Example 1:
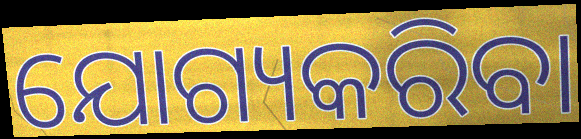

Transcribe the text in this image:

ଯୋଗ୍ୟକରିବା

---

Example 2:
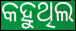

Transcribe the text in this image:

କହୁଥିଲ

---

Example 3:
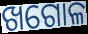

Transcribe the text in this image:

ଖଗୋଳ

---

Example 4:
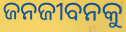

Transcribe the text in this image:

ଜନଜୀବନକୁ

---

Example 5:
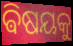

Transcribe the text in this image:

ଵିଷୟକୁ